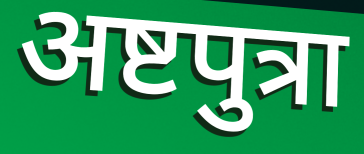
अष्टपुत्रा